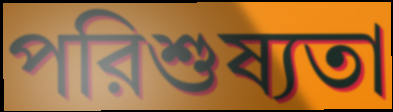
পরিশুষ্যতা